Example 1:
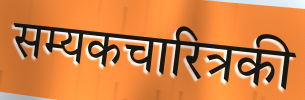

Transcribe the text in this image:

सम्यकचारित्रकी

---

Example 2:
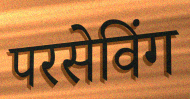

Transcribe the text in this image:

परसेविंग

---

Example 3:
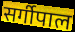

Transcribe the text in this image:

सर्गीपाल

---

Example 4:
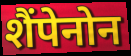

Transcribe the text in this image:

शैंपेनोन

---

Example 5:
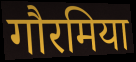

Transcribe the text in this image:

गौरमिया